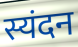
स्यंदन